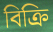
বিক্ৰি